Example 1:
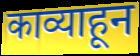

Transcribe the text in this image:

काव्याहून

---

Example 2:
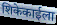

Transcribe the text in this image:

शिकेकाईला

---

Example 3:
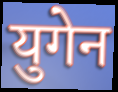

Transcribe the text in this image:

युगेन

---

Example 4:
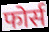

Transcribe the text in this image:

फोर्स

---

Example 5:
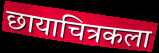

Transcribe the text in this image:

छायाचित्रकला